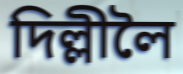
দিল্লীলৈ